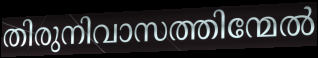
തിരുനിവാസത്തിന്മേൽ